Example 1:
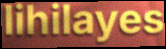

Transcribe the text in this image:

lihilayes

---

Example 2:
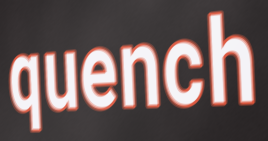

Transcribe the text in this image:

quench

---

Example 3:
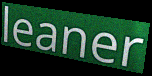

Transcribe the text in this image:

leaner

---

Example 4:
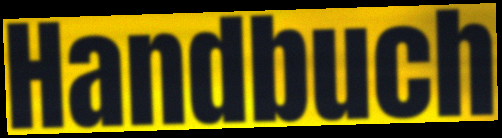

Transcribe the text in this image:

Handbuch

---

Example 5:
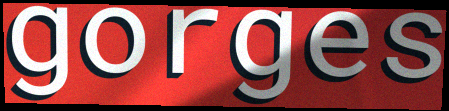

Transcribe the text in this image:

gorges